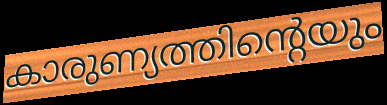
കാരുണ്യത്തിന്റെയും